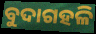
ବୁଦାଗହଳି